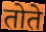
तोते